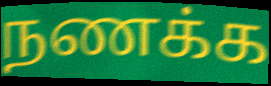
நணக்க